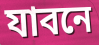
যাবনে